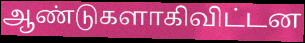
ஆண்டுகளாகிவிட்டன